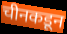
चीनकडून